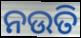
ନଉତି